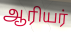
ஆரியர்